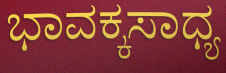
ಭಾವಕ್ಕಸಾಧ್ಯ